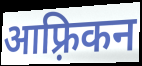
आफ़्रिकन